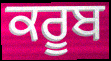
ਕਰੂਬ